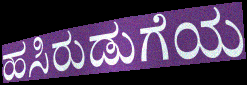
ಹಸಿರುಡುಗೆಯ